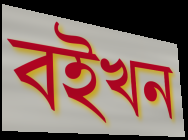
বইখন